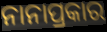
ନାନାପ୍ରକାର